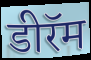
डीरॅम